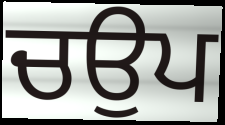
ਚਉਪ